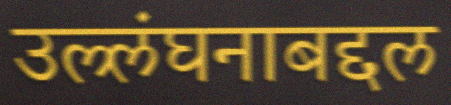
उल्लंघनाबद्दल